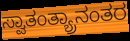
ಸ್ವಾತಂತ್ಯ್ರಾನಂತರ